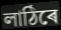
লাঠিৰে